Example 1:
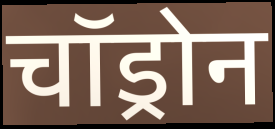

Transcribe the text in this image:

चॉड्रोन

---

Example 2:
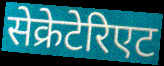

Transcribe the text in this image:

सेक्रेटेरिएट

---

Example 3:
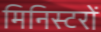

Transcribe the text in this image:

मिनिस्टरों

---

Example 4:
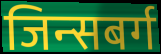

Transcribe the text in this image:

जिन्सबर्ग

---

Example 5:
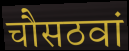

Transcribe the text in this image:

चौसठवां